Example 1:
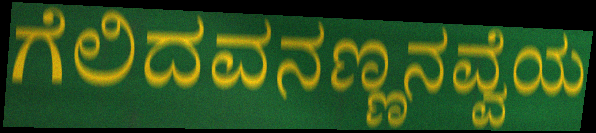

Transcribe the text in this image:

ಗೆಲಿದವನಣ್ಣನವ್ವೆಯ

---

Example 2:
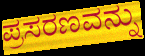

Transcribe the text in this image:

ಪ್ರಸರಣವನ್ನು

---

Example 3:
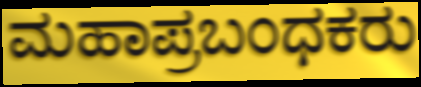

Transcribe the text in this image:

ಮಹಾಪ್ರಬಂಧಕರು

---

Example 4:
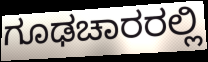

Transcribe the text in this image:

ಗೂಢಚಾರರಲ್ಲಿ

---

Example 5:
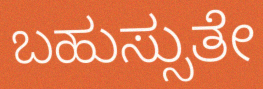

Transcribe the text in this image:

ಬಹುಸ್ಸುತೇ